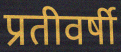
प्रतीवर्षी